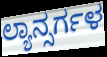
ಲ್ಯಾನ್ಸರ್ಗಳ